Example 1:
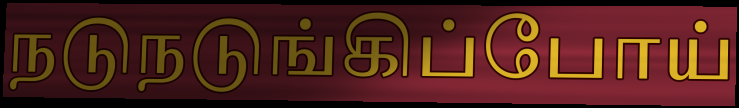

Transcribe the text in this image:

நடுநடுங்கிப்போய்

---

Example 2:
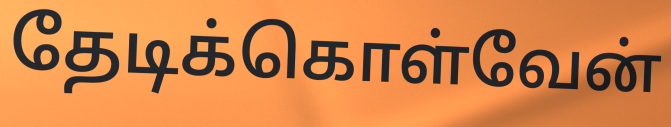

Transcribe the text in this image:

தேடிக்கொள்வேன்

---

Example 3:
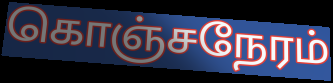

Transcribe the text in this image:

கொஞ்சநேரம்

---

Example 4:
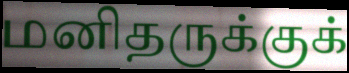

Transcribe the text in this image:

மனிதருக்குக்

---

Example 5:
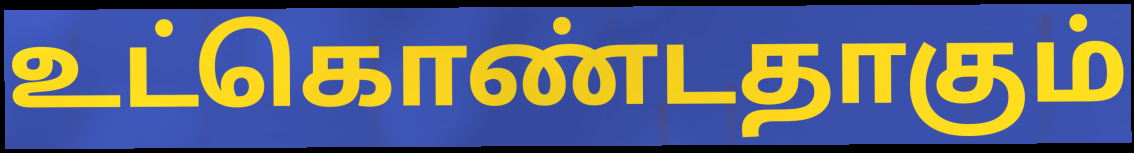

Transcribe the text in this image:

உட்கொண்டதாகும்